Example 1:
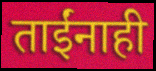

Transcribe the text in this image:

ताईंनाही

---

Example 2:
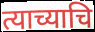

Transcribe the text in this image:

त्याच्याचि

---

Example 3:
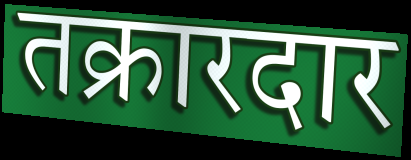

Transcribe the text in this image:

तक्रारदार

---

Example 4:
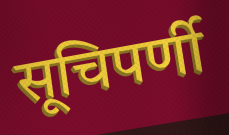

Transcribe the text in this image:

सूचिपर्णी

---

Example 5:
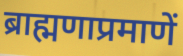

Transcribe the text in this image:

ब्राह्मणाप्रमाणें